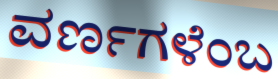
ವರ್ಣಗಳೆಂಬ